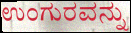
ಉಂಗುರವನ್ನು